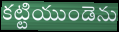
కట్టియుండెను